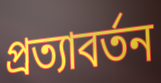
প্রত্যাবর্তন